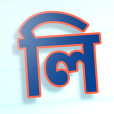
লি